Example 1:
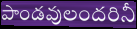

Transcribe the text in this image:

పాండవులందరినీ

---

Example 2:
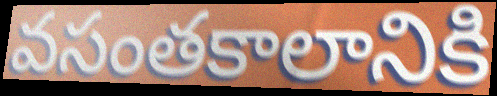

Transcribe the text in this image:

వసంతకాలానికి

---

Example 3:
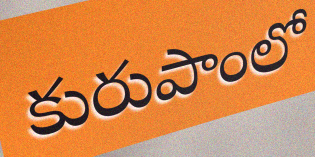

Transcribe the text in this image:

కురుపాంలో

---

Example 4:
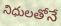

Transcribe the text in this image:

నిధులతోనే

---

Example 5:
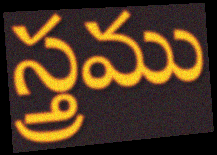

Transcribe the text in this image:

స్త్రము